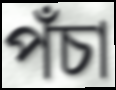
পঁচা